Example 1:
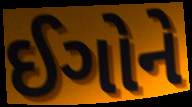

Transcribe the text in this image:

ઈગોને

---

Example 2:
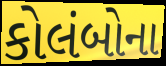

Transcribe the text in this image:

કોલંબોના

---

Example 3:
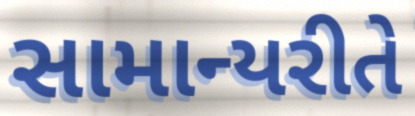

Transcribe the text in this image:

સામાન્યરીતે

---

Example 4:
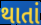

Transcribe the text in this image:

થાતાં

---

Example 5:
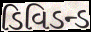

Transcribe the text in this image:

ડિવિડન્ડ